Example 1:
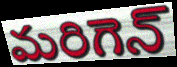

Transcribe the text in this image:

మరిగెన్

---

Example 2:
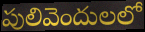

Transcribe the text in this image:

పులివెందులలో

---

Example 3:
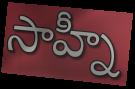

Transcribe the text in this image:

సాహ్నీ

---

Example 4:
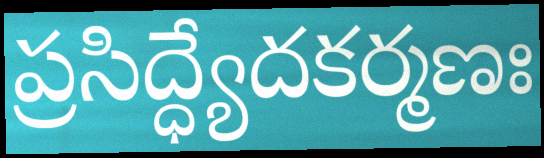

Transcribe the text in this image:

ప్రసిద్ధ్యేదకర్మణః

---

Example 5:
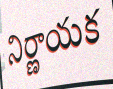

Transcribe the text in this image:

నిర్ణాయక